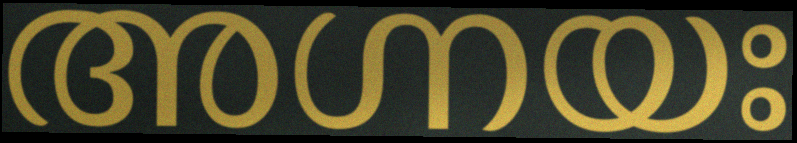
അഗ്നയഃ